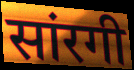
सांरगी